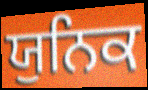
ਯੁਨਿਕ